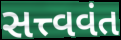
સત્ત્વવંત